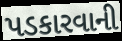
પડકારવાની